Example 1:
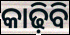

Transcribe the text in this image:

କାଢ଼ିବି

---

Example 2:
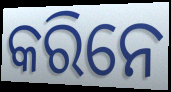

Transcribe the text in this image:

କରିନେ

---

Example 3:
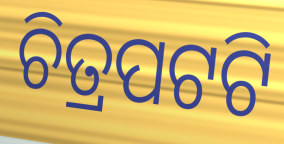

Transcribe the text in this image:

ଚିତ୍ରପଟଟି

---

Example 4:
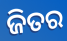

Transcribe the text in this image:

ଜିତର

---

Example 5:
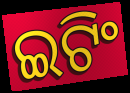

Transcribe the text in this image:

ଇଟିଂ